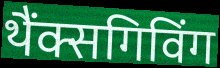
थैंक्सगिविंग